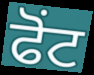
ਫੋਂਟ